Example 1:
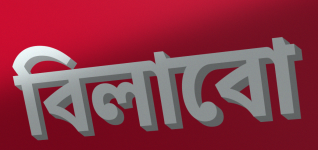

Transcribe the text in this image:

বিলাবো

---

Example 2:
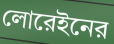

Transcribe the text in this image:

লোরেইনের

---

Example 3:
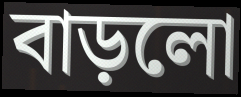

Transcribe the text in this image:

বাড়লো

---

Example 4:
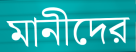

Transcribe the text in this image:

মানীদের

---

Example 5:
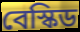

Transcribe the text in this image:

বেস্কিড